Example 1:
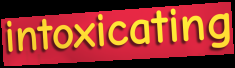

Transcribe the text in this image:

intoxicating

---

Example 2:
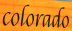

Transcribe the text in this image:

colorado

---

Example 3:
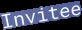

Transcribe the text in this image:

Invitee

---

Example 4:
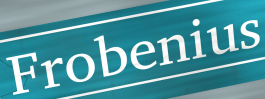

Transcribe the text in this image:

Frobenius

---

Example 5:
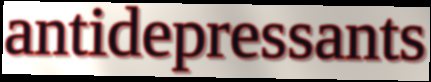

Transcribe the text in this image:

antidepressants